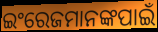
ଇଂରେଜମାନଙ୍କପାଇଁ